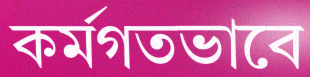
কর্মগতভাবে